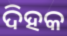
ଦିହକ